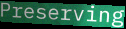
Preserving